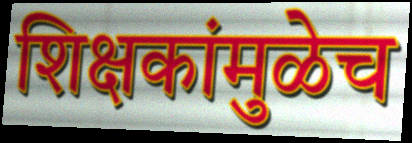
शिक्षकांमुळेच